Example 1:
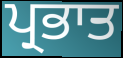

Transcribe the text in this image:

ਪ੍ਰਭਾਤ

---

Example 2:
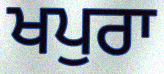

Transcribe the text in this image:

ਖਪੁਰਾ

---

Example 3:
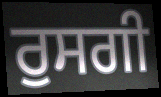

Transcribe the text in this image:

ਰੁਸਗੀ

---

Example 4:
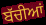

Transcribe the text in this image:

ਬੱਚੀਆਂ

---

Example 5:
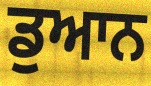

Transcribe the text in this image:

ਡੁਆਨ